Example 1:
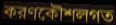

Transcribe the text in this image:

করণকৌশলগত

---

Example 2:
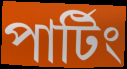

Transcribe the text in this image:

পার্টিং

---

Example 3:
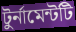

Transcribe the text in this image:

টুর্নামেন্টটি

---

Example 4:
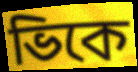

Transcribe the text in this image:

ভিকে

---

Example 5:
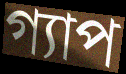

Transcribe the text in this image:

গ্যাপ